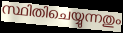
സ്ഥിതിചെയ്യുന്നതും